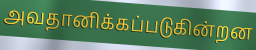
அவதானிக்கப்படுகின்றன